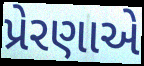
પ્રેરણાએ